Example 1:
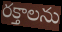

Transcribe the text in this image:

రక్తాలను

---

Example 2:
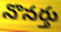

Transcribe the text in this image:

నొనర్తు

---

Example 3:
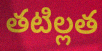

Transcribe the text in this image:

తటిల్లత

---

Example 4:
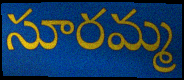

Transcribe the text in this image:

సూరమ్మ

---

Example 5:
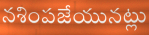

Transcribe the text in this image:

నశింపజేయునట్లు